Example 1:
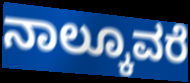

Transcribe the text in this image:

ನಾಲ್ಕೂವರೆ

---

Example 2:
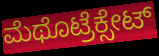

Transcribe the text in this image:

ಮೆಥೊಟ್ರೆಕ್ಸೇಟ್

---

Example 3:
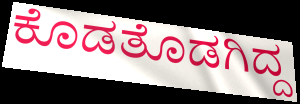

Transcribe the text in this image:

ಕೊಡತೊಡಗಿದ್ದ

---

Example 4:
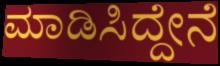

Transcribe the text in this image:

ಮಾಡಿಸಿದ್ದೇನೆ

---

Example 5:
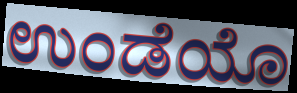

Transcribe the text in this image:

ಉಂಡೆಯೊ